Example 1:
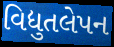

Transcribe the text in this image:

વિદ્યુતલેપન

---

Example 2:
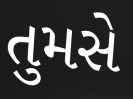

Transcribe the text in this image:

તુમસે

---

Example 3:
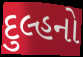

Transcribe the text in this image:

દુલ્હનો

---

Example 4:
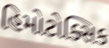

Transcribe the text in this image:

હિમોટોક્સિક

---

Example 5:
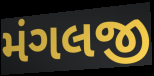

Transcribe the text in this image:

મંગલજી